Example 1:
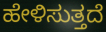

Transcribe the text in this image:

ಹೇಳಿಸುತ್ತದೆ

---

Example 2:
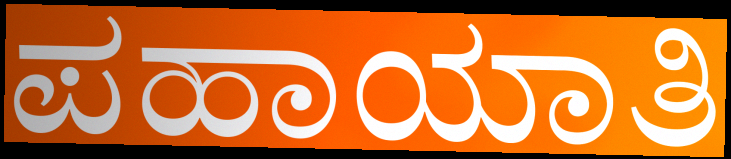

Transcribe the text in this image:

ಪಹಾಯಾತಿ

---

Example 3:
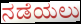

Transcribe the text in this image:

ನಡೆಯಲು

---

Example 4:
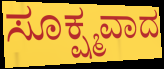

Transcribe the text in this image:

ಸೂಕ್ಷ್ಮವಾದ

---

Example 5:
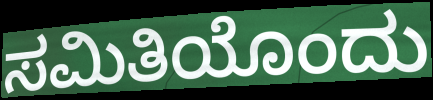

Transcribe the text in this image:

ಸಮಿತಿಯೊಂದು